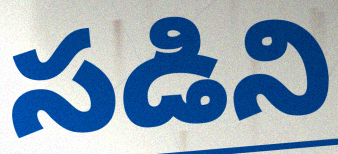
సడిని